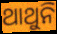
ଥାଥୁନି